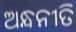
ଅନ୍ଧନୀତି